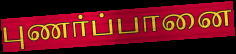
புணர்ப்பானை